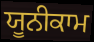
ਯੂਨੀਕਾਮ